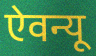
ऐवन्यू